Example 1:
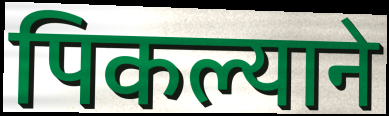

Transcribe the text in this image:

पिकल्याने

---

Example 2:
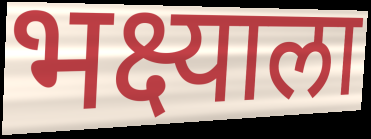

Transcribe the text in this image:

भक्ष्याला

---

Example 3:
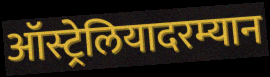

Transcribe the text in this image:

ऑस्ट्रेलियादरम्यान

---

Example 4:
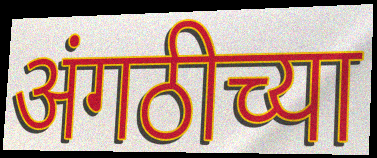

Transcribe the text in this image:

अंगठीच्या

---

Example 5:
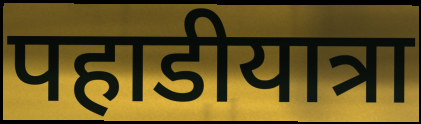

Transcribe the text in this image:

पहाडीयात्रा